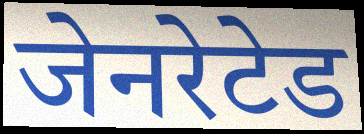
जेनरेटेड